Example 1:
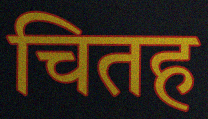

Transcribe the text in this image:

चितह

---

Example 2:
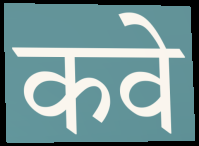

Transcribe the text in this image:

कवे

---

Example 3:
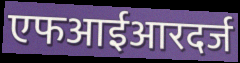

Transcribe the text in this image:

एफआईआरदर्ज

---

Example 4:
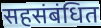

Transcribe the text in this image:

सहसंबंधित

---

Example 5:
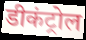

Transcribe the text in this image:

डीकंट्रोल